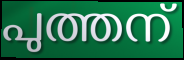
പുത്തന്